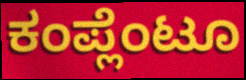
ಕಂಪ್ಲೆಂಟೂ